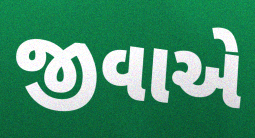
જીવાએ